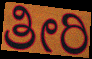
ತೀರಿ